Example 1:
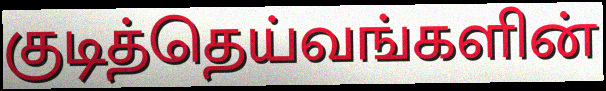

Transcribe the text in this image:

குடித்தெய்வங்களின்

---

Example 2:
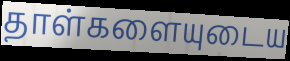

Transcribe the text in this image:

தாள்களையுடைய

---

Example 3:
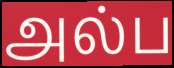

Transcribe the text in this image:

அல்ப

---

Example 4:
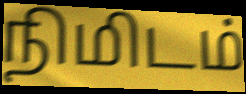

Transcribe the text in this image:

நிமிடம்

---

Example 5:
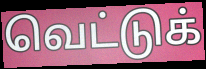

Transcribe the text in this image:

வெட்டுக்